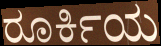
ರೂರ್ಕಿಯ